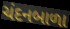
ચંદનબાળા